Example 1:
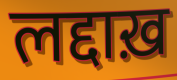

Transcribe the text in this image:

लद्दाख़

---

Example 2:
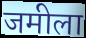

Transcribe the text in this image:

जमीला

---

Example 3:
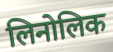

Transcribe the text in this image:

लिनोलिक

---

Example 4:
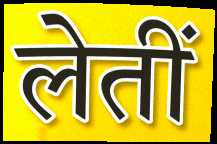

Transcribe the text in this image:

लेतीं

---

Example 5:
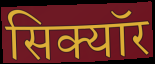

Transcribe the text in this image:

सिक्यॉर